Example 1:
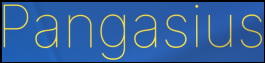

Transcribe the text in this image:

Pangasius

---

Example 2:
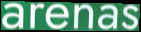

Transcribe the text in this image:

arenas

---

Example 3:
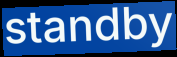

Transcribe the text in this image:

standby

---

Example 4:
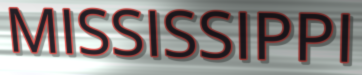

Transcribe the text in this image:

MISSISSIPPI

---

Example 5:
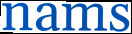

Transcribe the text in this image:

nams